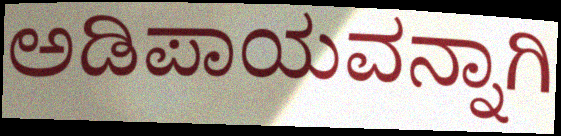
ಅಡಿಪಾಯವನ್ನಾಗಿ